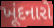
ખૂંદનારો